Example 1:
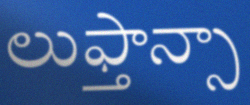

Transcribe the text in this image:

లుఫ్తాన్సా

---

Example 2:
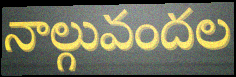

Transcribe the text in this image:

నాల్గువందల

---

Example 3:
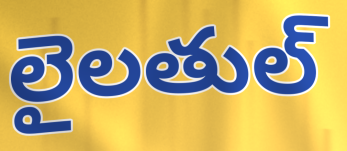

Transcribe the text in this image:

లైలతుల్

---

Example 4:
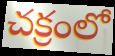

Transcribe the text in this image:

చక్రంలో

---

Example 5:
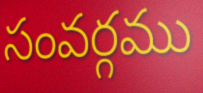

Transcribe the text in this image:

సంవర్గము